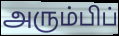
அரும்பிப்